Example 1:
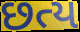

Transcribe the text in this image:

છત્ય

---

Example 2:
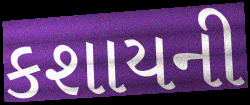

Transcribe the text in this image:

કશાયની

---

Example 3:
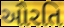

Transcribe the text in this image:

ઔરતિ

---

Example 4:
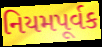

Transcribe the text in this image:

નિયમપૂર્વક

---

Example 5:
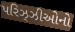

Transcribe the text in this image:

પરિઝ્ઝીઓનો